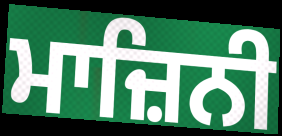
ਮਾਜ਼ਿਨੀ